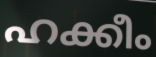
ഹക്കീം